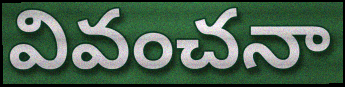
వివంచనా